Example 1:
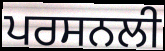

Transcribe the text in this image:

ਪਰਸਨਲੀ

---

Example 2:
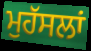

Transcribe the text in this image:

ਮੁਹੱਸਲਾਂ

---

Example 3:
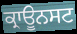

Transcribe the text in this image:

ਕ੍ਰਾਊਨਸਟ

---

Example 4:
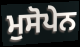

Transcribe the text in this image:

ਮੁਸੋਪੇਨ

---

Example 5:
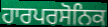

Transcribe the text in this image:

ਹਾਰਪਰਸੋਨਿਕ